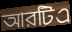
আরটিএ